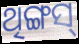
ଥିଙ୍ଗସ୍